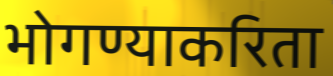
भोगण्याकरिता